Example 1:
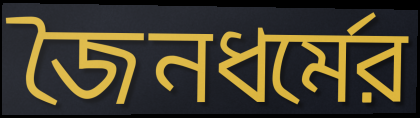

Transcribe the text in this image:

জৈনধর্মের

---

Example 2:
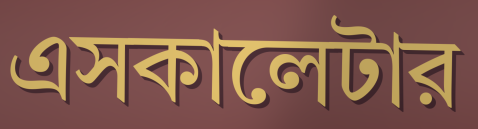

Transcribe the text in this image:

এসকালেটার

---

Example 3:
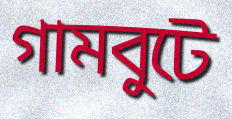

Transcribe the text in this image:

গামবুটে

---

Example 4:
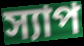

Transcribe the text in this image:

স্যাপ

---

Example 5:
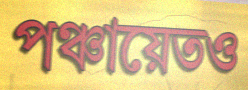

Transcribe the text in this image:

পঞ্চায়েতও